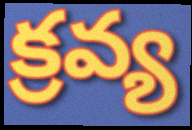
క్రవ్య